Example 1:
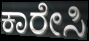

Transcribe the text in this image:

ಕಾರೇಸಿ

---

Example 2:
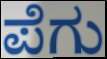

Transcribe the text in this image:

ಪೆಗು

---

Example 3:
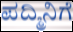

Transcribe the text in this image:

ಪದ್ಮಿನಿಗೆ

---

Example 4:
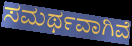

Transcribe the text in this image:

ಸಮರ್ಥವಾಗಿವೆ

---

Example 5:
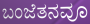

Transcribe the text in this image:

ಬಂಜೆತನವೂ